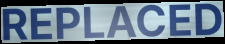
REPLACED